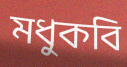
মধুকবি